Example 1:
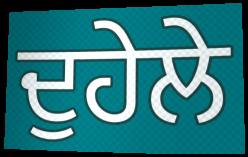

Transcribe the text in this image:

ਦੁਹੇਲੇ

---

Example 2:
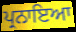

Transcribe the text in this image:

ਪ੍ਰਨਾਇਆ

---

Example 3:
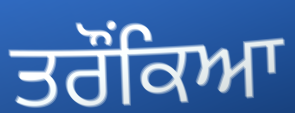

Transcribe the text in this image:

ਤਰੌਂਕਿਆ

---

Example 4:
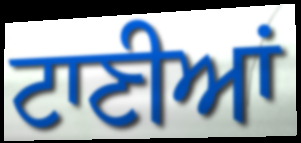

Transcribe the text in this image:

ਟਾਣੀਆਂ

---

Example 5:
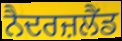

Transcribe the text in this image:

ਨੈਦਰਜ਼ਲੈਂਡ